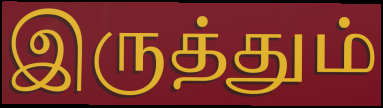
இருத்தும்